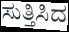
ಸುತ್ತಿಸಿದ